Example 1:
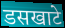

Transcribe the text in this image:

डसखाटे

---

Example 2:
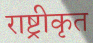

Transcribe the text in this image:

राष्ट्रीकृत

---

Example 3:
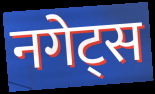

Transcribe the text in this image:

नगेट्स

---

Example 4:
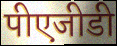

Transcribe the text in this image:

पीएजीडी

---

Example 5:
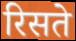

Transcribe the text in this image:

रिसते